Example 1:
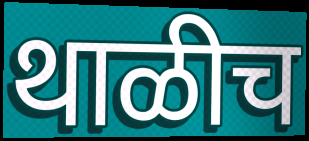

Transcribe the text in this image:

थाळीच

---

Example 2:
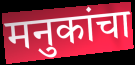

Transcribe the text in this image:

मनुकांचा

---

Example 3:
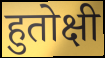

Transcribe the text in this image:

हुतोक्षी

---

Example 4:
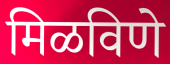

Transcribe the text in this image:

मिळविणे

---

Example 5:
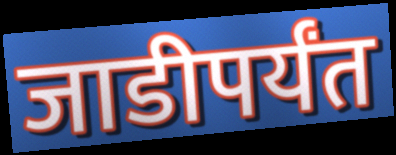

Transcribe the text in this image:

जाडीपर्यंत